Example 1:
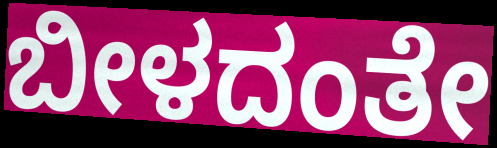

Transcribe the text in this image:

ಬೀಳದಂತೇ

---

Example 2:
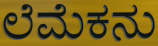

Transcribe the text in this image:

ಲೆಮೆಕನು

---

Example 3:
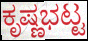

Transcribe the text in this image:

ಕೃಷ್ಣಭಟ್ಟ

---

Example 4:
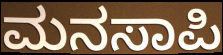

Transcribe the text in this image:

ಮನಸಾಪಿ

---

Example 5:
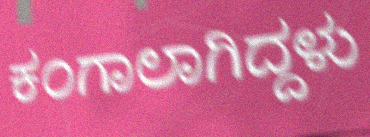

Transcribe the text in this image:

ಕಂಗಾಲಾಗಿದ್ದಳು